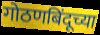
गोठणबिंदूच्या